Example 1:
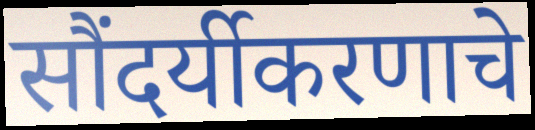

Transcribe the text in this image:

सौंदर्यीकरणाचे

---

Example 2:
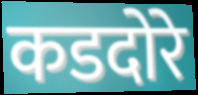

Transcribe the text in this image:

कडदोरे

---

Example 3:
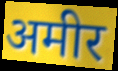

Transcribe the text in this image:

अमीर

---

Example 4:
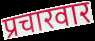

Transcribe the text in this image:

प्रचारवार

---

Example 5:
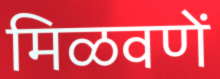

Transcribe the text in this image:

मिळवणें